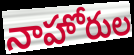
నాహోరుల